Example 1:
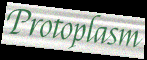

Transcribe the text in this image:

Protoplasm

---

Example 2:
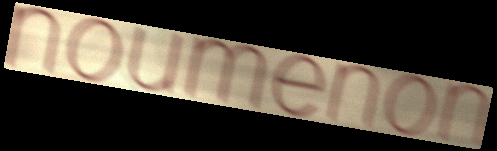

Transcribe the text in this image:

noumenon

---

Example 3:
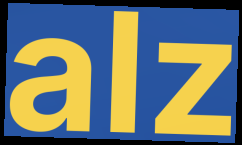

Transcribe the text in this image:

alz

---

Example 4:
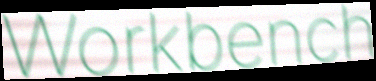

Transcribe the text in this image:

Workbench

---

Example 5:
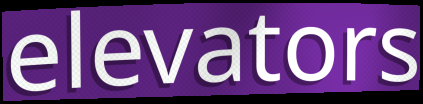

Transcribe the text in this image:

elevators